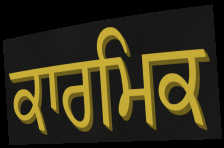
ਕਾਰਮਿਕ